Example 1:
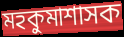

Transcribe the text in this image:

মহকুমাশাসক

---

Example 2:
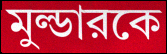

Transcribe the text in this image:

মুল্ডারকে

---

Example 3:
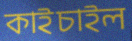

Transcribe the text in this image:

কাইচাইল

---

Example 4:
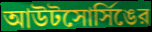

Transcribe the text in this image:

আউটসোর্সিঙের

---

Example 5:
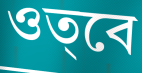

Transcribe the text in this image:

ওত্‌বে